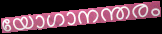
യോഗാനന്തരം